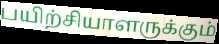
பயிற்சியாளருக்கும்